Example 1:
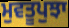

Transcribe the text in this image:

ਮੁਵਤੂਪੁਝਾ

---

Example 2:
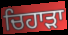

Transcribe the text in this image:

ਚਿਹਾੜਾ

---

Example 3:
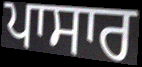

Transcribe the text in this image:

ਪਾਸਾਰ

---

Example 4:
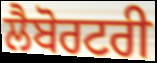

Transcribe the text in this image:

ਲੈਬੋਰਟਰੀ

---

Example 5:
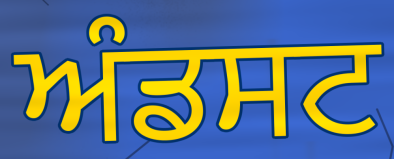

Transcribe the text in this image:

ਅੰਡਸਟ